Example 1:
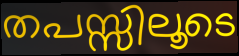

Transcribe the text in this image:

തപസ്സിലൂടെ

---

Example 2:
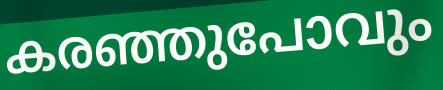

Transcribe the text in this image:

കരഞ്ഞുപോവും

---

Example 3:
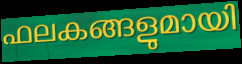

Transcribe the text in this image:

ഫലകങ്ങളുമായി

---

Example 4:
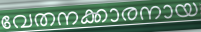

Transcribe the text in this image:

വേതനക്കാരനായ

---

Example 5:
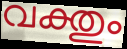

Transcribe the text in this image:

വക്തും